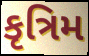
કૃત્રિમ